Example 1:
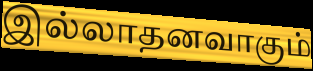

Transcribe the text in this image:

இல்லாதனவாகும்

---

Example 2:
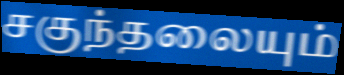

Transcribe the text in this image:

சகுந்தலையும்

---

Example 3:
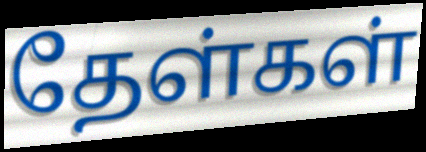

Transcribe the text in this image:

தேள்கள்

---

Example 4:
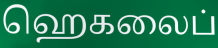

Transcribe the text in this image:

ஹெகலைப்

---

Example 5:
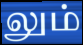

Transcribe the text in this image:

லும்